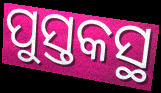
ପୁସ୍ତକସ୍ଥ